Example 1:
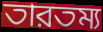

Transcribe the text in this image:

তারতম্য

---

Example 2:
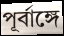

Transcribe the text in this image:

পূর্বাঙ্গে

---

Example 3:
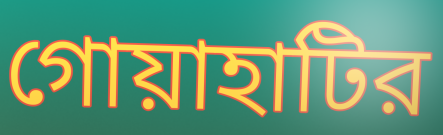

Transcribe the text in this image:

গোয়াহাটির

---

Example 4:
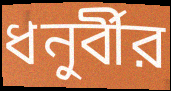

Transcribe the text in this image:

ধনুর্বীর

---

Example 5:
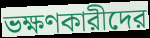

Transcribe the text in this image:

ভক্ষণকারীদের